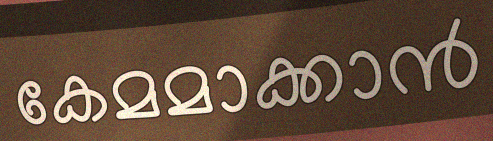
കേമമാക്കാൻ